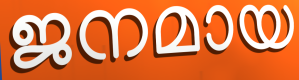
ജനമായ